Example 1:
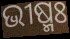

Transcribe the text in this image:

ଭୀଷ୍ମଃ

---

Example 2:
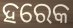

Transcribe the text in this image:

ହରେକ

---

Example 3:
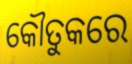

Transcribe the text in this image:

କୌତୁକରେ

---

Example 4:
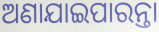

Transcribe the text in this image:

ଅଣାଯାଇପାରନ୍ତା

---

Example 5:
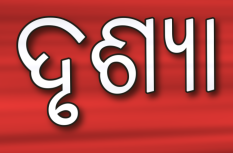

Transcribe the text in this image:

ଦୃଶ୍ୟା